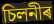
চিলনীৰ